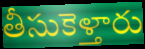
తీసుకెళ్తారు